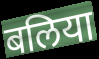
बलिया